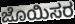
ಜೊಯಿಸರ